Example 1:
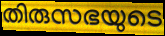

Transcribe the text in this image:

തിരുസഭയുടെ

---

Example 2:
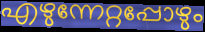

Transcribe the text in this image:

എഴുന്നേറ്റപ്പോഴും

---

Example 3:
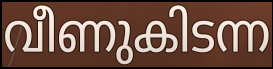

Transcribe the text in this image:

വീണുകിടന്ന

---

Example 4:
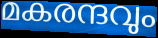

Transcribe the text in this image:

മകരന്ദവും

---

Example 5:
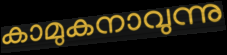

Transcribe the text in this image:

കാമുകനാവുന്നു